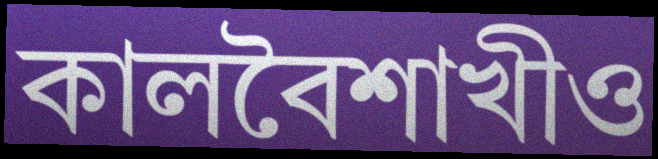
কালবৈশাখীও